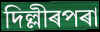
দিল্লীৰপৰা